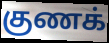
குணக்